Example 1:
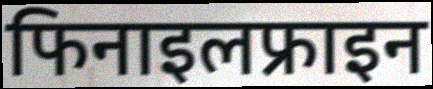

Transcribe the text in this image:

फिनाइलफ्राइन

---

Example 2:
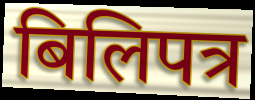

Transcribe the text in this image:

बिलिपत्र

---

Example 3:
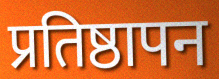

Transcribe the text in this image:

प्रतिष्ठापन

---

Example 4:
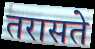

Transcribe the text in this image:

तरासते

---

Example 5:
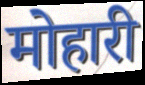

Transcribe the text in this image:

मोहारी